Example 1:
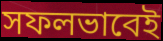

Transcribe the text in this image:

সফলভাবেই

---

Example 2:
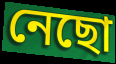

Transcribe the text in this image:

নেছো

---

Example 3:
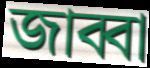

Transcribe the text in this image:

জাব্বা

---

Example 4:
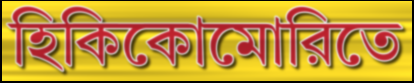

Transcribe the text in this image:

হিকিকোমোরিতে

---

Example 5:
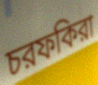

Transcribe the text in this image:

চরফকিরা